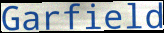
Garfield